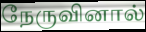
நேருவினால்